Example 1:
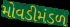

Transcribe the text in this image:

મોવડીમંડળ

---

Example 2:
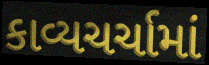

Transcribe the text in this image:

કાવ્યચર્ચામાં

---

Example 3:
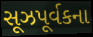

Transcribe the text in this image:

સૂઝપૂર્વકના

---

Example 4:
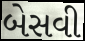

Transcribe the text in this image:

બેસવી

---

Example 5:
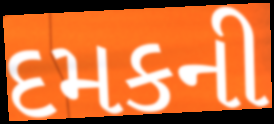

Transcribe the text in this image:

દમકની